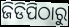
ଜିଡିପିଠାରୁ